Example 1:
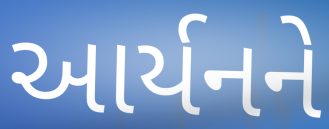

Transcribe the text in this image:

આર્યનને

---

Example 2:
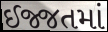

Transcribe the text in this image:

ઈજ્જતમાં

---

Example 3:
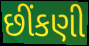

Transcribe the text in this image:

છીંકણી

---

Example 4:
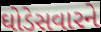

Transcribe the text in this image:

ઘોડેસવારને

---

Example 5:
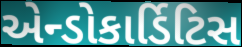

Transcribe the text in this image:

એન્ડોકાર્ડિટિસ